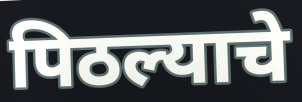
पिठल्याचे